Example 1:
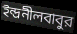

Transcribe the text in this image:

ইন্দ্রনীলবাবুর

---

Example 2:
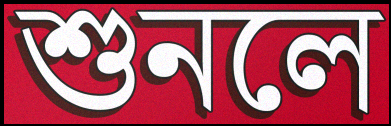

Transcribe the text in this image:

শুনলে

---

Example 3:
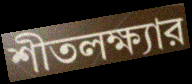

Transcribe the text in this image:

শীতলক্ষ্যার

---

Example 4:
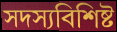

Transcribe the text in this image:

সদস্যবিশিষ্ট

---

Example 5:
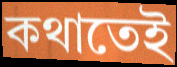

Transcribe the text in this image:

কথাতেই